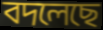
বদলেছে